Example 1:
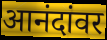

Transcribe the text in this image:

आनंदांवर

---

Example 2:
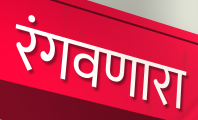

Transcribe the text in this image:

रंगवणारा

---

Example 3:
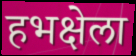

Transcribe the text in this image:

हभक्षेला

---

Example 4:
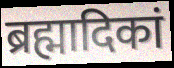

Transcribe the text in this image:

ब्रह्मादिकां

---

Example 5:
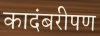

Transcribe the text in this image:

कादंबरीपण